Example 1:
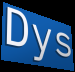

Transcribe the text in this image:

Dys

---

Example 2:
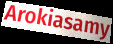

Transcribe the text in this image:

Arokiasamy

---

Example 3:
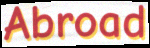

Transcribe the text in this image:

Abroad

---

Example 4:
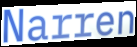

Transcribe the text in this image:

Narren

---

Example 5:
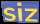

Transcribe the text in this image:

siz